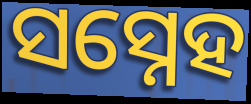
ସସ୍ନେହ